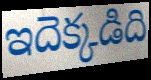
ఇదెక్కడిది